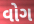
વોગ